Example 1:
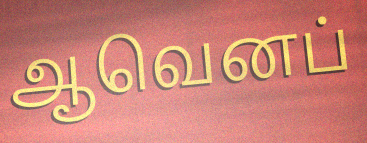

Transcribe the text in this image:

ஆவெனப்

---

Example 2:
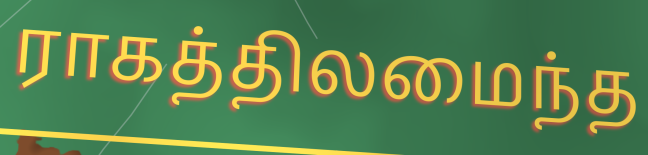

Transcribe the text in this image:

ராகத்திலமைந்த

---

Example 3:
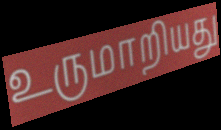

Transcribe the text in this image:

உருமாறியது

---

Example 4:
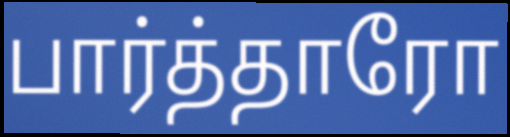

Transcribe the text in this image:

பார்த்தாரோ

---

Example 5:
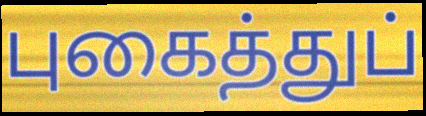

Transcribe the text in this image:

புகைத்துப்